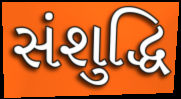
સંશુદ્ધિ